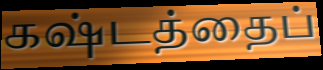
கஷ்டத்தைப்